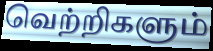
வெற்றிகளும்